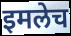
इमलेच